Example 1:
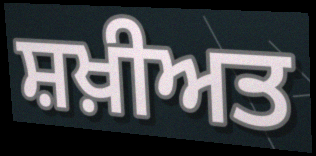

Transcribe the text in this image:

ਸ਼ਖ਼ੀਅਤ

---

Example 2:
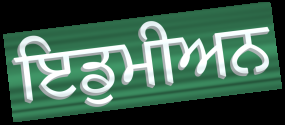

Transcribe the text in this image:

ਇਡੁਮੀਅਨ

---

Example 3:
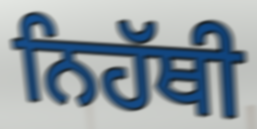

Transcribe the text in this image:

ਨਿਹੱਥੀ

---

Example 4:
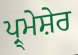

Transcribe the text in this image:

ਪ੍ਰ੍ਮੇਸ਼ੇਰ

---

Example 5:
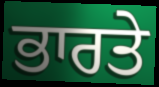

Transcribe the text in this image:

ਭਾਰਤੇ